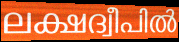
ലക്ഷദ്വീപിൽ